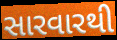
સારવારથી